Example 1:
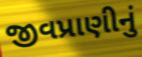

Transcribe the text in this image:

જીવપ્રાણીનું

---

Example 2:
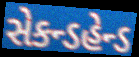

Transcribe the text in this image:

સેકન્ડહેન્ડ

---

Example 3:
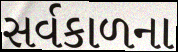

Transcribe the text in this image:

સર્વકાળના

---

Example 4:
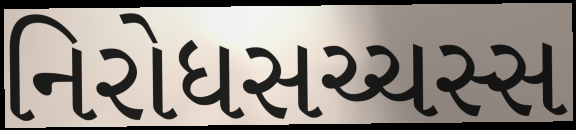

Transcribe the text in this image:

નિરોધસચ્ચસ્સ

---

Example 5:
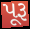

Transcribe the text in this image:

પૂરૂ